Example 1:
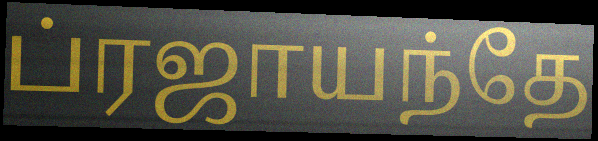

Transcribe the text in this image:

ப்ரஜாயந்தே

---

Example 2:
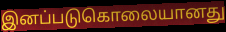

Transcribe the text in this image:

இனப்படுகொலையானது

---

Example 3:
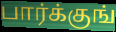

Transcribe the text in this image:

பார்க்குங்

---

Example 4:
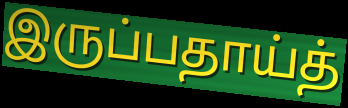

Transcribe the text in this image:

இருப்பதாய்த்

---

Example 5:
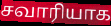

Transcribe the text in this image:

சவாரியாக